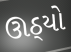
ઊઠ્યો